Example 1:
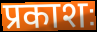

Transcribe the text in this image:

प्रकाशः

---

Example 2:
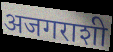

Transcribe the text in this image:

अजगराशी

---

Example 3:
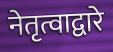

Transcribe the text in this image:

नेतृत्वाद्वारे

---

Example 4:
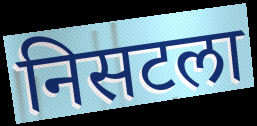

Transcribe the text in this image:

निसटला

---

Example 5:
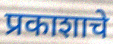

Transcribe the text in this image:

प्रकाशाचे